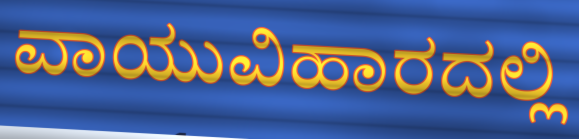
ವಾಯುವಿಹಾರದಲ್ಲಿ